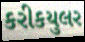
કરીકયુલર